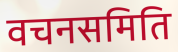
वचनसमिति